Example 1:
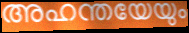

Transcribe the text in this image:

അഹന്തയേയും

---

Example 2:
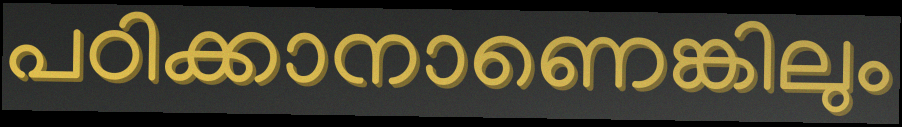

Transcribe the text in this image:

പഠിക്കാനാണെങ്കിലും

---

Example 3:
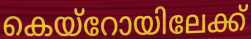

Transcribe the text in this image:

കെയ്റോയിലേക്ക്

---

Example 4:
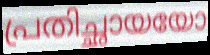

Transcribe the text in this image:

പ്രതിച്ഛായയോ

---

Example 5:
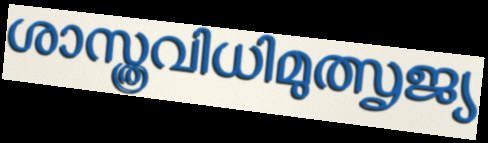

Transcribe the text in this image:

ശാസ്ത്രവിധിമുത്സൃജ്യ